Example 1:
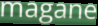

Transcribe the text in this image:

magane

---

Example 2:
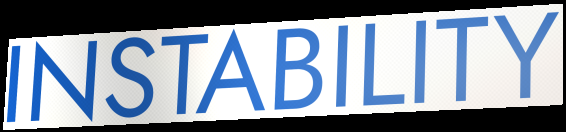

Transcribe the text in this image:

INSTABILITY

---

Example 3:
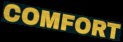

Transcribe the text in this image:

COMFORT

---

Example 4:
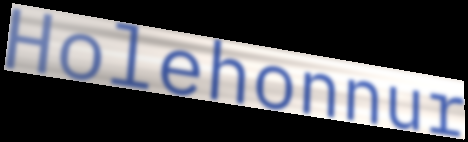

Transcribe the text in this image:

Holehonnur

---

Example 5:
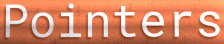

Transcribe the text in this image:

Pointers